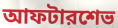
আফটারশেভ